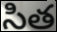
సిత